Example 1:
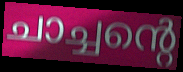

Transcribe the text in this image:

ചാച്ചന്റെ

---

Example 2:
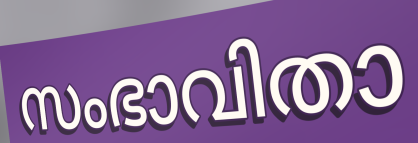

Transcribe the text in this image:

സംഭാവിതാ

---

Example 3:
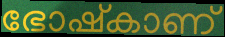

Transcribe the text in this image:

ഭോഷ്കാണ്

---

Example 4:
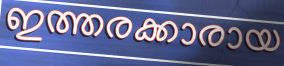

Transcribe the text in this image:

ഇത്തരക്കാരായ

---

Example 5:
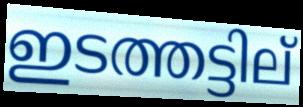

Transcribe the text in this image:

ഇടത്തട്ടില്